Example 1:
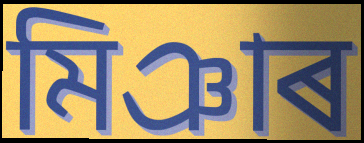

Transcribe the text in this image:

মিঞাৰ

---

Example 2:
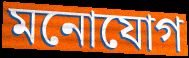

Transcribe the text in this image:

মনোযোগ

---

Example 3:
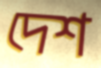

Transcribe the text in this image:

দেশ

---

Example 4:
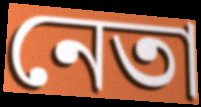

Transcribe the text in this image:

নেতা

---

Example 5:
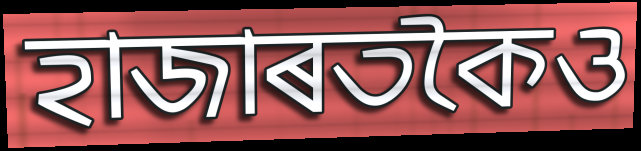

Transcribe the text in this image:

হাজাৰতকৈও